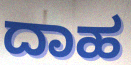
ದಾಹ